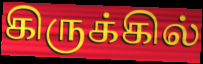
கிருக்கில்